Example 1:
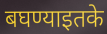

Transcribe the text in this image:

बघण्याइतके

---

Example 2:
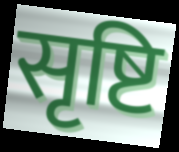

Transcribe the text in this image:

सृष्टि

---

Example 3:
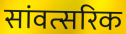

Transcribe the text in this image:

सांवत्सरिक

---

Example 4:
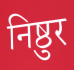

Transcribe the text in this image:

निष्ठुर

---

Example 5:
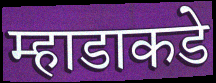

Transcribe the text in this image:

म्हाडाकडे